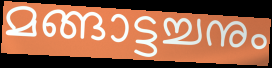
മങ്ങാട്ടച്ചനും